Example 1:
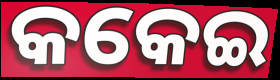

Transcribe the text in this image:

କକେଇ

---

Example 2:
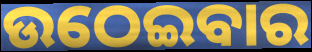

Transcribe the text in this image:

ଉଠେଇବାର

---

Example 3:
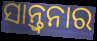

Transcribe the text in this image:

ସାନ୍ତ୍ବନାର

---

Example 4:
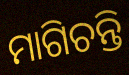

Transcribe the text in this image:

ମାଗିଚନ୍ତି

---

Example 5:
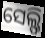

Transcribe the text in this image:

ସେଲ୍ଫି